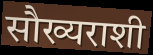
सौख्यराशी